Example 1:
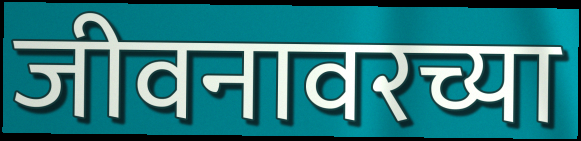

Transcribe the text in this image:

जीवनावरच्या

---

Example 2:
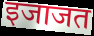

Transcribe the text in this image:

इजाजत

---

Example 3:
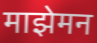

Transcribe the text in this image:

माझेमन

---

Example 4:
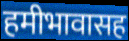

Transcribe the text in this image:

हमीभावासह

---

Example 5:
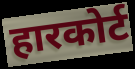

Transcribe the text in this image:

हारकोर्ट